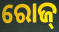
ରୋଜ୍